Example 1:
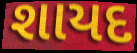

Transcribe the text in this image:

શાયદ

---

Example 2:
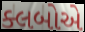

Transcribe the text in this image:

ક્લબોએ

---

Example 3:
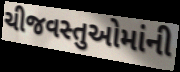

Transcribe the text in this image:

ચીજવસ્તુઓમાંની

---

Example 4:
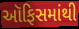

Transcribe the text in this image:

ઑફિસમાંથી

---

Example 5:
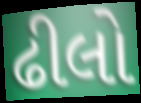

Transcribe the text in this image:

ઢીલો